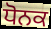
ਧੋਨਕ